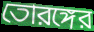
তোরঙ্গের